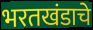
भरतखंडाचे